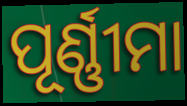
ପୂର୍ଣ୍ଣୀମା